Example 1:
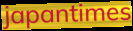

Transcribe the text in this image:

japantimes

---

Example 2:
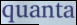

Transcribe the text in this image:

quanta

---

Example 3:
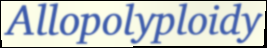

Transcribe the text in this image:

Allopolyploidy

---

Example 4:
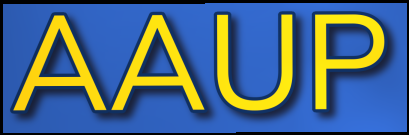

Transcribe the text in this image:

AAUP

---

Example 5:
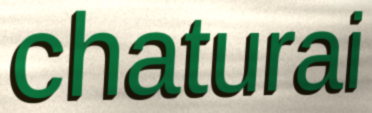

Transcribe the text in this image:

chaturai